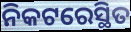
ନିକଟରେସ୍ଥିତ